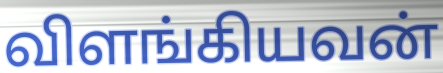
விளங்கியவன்